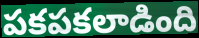
పకపకలాడింది